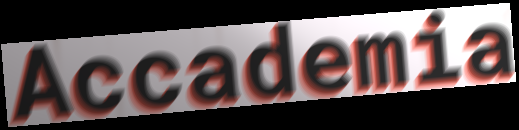
Accademia